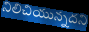
నిలిచియున్నదని